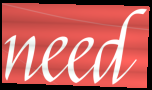
need